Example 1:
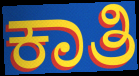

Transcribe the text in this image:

ಕಾತಿ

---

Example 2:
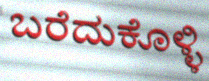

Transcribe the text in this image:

ಬರೆದುಕೊಳ್ಳಿ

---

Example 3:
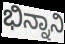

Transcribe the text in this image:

ಭಿನ್ನಾನಿ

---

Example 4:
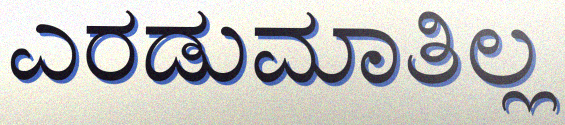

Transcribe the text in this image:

ಎರಡುಮಾತಿಲ್ಲ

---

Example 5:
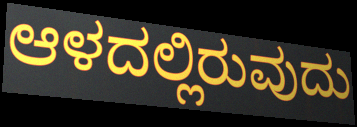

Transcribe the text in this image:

ಆಳದಲ್ಲಿರುವುದು